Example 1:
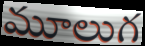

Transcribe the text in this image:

మూలుగ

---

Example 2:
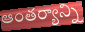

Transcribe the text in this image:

ఆంతర్యాన్ని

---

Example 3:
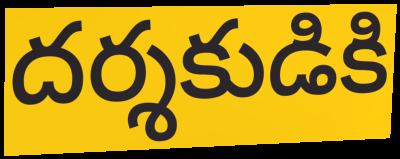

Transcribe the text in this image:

దర్శకుడికి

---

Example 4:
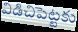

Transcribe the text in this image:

విడిచిపెట్టకు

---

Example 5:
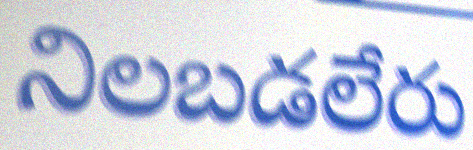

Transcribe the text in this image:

నిలబడలేరు